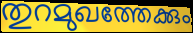
തുറമുഖത്തേക്കും